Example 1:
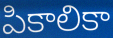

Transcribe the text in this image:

పికాలికా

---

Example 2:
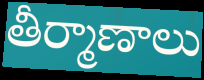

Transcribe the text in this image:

తీర్మాణాలు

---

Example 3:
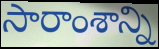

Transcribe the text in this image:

సారాంశాన్ని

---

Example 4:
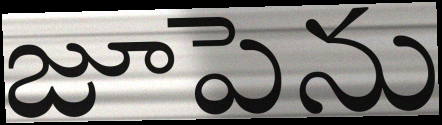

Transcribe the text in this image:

జూపెను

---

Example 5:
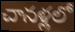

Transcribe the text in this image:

చానళ్లలో